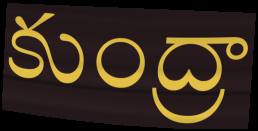
కుంద్రా